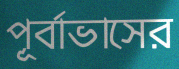
পূর্বাভাসের